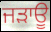
ਜੜਾਊ